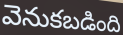
వెనుకబడింది